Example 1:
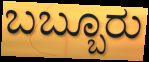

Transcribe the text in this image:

ಬಬ್ಬೂರು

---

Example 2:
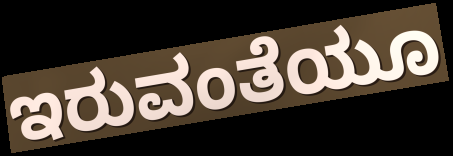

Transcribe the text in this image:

ಇರುವಂತೆಯೂ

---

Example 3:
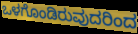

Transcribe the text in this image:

ಒಳಗೊಂಡಿರುವುದರಿಂದ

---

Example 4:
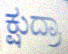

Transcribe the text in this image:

ಕ್ಷುದ್ರಾ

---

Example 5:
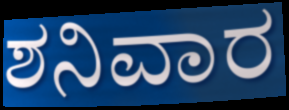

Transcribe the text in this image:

ಶನಿವಾರ